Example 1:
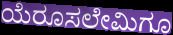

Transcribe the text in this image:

ಯೆರೂಸಲೇಮಿಗೂ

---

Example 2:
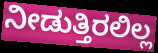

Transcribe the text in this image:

ನೀಡುತ್ತಿರಲಿಲ್ಲ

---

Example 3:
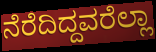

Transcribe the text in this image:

ನೆರೆದಿದ್ದವರೆಲ್ಲಾ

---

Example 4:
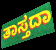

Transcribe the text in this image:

ತಾಸ್ತದಾ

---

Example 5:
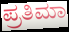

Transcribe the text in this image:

ಪ್ರತಿಮಾ